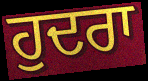
ਹੁਦਰਾ